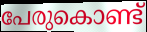
പേരുകൊണ്ട്